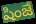
షింజే